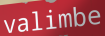
valimbe